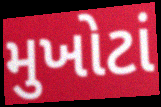
મુખોટાં